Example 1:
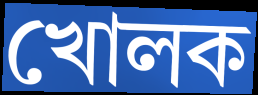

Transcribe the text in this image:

খোলক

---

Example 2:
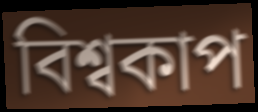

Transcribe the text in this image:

বিশ্বকাপ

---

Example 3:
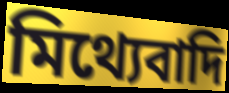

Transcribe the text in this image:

মিথ্যেবাদি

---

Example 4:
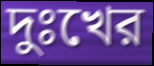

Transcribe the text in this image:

দুঃখের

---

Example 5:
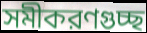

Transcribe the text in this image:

সমীকরণগুচ্ছ